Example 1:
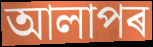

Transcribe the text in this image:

আলাপৰ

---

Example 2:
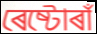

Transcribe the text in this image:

ৰেষ্টোৰাঁ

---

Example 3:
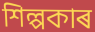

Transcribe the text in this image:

শিল্পকাৰ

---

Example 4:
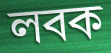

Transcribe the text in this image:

লবক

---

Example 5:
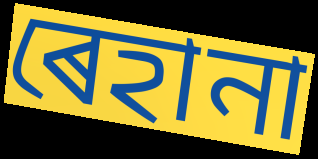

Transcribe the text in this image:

ৰেহানা